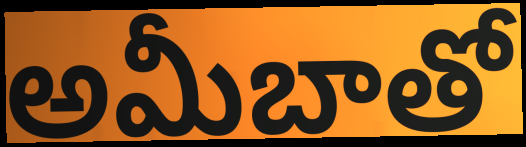
అమీబాతో